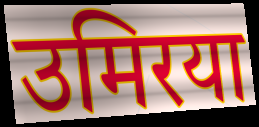
उमिरया